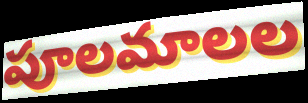
పూలమాలల